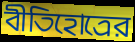
বীতিহোত্রের